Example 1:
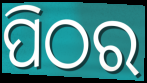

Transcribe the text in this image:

ପିଠର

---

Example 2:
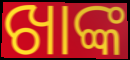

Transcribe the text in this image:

ଖାଙ୍କ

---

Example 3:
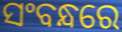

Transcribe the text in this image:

ସଂବନ୍ଧରେ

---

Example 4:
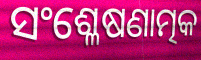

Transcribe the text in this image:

ସଂଶ୍ଳେଷଣାତ୍ମକ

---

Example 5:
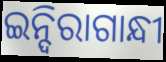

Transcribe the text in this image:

ଇନ୍ଦିରାଗାନ୍ଧୀ